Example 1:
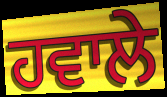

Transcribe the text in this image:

ਹਵਾਲੇ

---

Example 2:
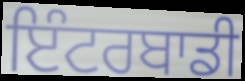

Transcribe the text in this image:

ਇੰਟਰਬਾਡੀ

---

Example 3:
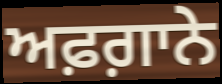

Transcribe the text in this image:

ਅਫ਼ਗ਼ਾਨੇ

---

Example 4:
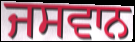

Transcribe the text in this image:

ਜਸਵਾਨ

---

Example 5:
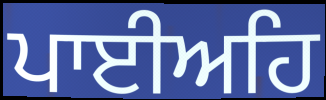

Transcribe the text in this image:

ਪਾਈਅਹਿ